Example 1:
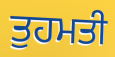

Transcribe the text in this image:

ਤੁਹਮਤੀ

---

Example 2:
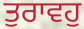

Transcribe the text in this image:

ਤੁਰਾਵਹੁ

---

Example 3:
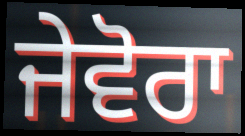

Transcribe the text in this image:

ਜੇਵੋਰਾ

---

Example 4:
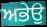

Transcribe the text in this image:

ਅਭੇਉ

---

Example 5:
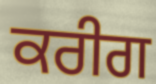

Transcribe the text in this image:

ਕਰੀਗ